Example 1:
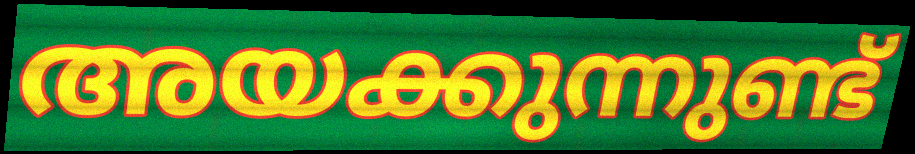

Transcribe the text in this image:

അയക്കുന്നുണ്ട്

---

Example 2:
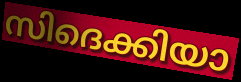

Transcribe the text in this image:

സിദെക്കിയാ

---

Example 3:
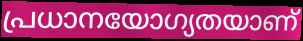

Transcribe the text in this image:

പ്രധാനയോഗ്യതയാണ്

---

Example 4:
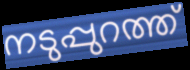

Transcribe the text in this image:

നടുപ്പുറത്ത്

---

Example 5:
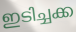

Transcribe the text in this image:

ഇടിച്ചക്ക